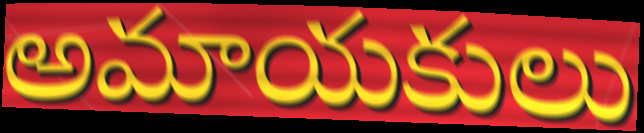
అమాయకులు